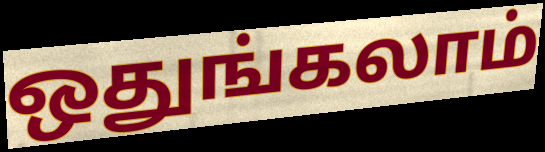
ஒதுங்கலாம்